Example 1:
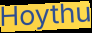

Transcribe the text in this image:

Hoythu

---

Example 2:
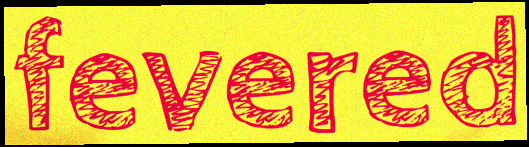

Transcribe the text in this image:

fevered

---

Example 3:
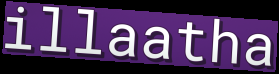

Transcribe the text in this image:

illaatha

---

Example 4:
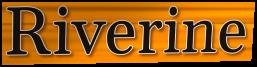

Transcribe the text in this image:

Riverine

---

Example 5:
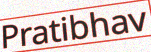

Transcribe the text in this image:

Pratibhav